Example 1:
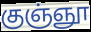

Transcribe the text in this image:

குஞ்ஞூ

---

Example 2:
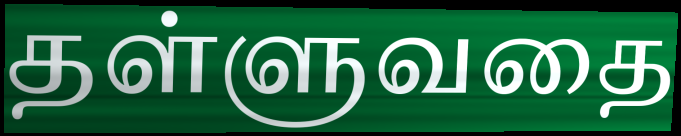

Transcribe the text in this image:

தள்ளுவதை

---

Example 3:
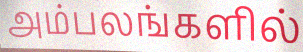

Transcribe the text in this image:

அம்பலங்களில்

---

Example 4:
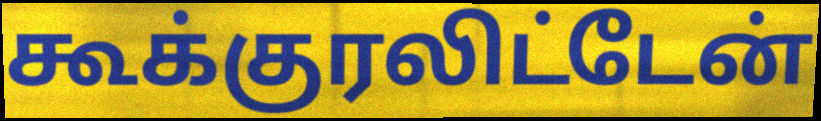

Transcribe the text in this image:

கூக்குரலிட்டேன்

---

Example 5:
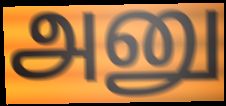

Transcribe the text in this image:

அனு